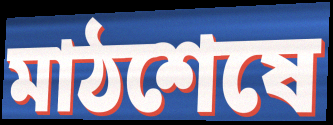
মাঠশেষে